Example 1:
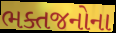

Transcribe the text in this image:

ભક્તજનોના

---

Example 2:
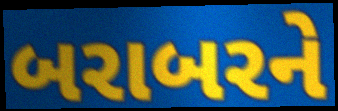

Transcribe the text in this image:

બરાબરને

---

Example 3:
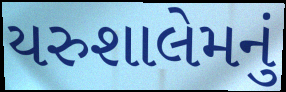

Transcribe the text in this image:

યરુશાલેમનું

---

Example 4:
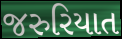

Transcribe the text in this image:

જરુરિયાત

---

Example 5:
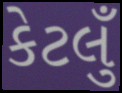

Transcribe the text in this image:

કેટલુઁ